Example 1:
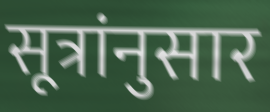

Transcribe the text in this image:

सूत्रांनुसार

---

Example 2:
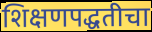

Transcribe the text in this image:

शिक्षणपद्धतीचा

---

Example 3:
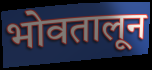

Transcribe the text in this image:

भोवतालून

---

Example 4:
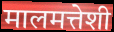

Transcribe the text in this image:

मालमत्तेशी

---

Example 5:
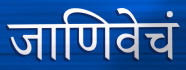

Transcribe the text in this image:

जाणिवेचं